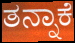
ತನ್ನಾಕೆ